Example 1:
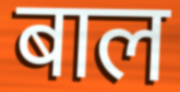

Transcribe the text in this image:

बाल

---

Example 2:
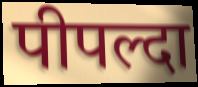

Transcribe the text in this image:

पीपल्दा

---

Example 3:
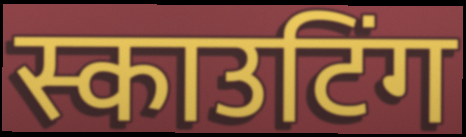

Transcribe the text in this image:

स्काउटिंग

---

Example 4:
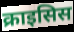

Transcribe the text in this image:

क्राइसिस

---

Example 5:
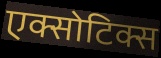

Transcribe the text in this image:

एक्सोटिक्स